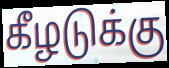
கீழடுக்கு